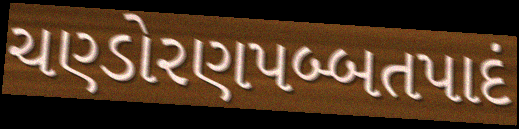
ચણ્ડોરણપબ્બતપાદં